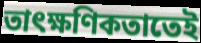
তাৎক্ষণিকতাতেই